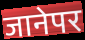
जानेपर